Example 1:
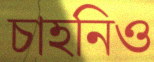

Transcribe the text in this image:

চাহনিও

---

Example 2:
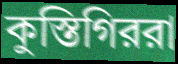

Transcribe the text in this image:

কুস্তিগিররা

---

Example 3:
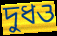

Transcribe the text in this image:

দুধও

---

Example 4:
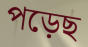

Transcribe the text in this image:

পড়েছ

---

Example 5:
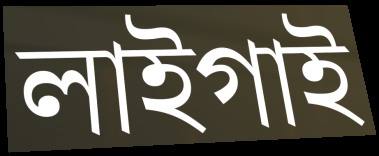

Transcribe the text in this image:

লাইগাই